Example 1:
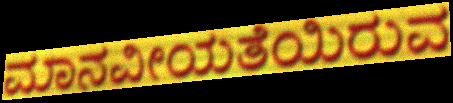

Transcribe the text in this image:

ಮಾನವೀಯತೆಯಿರುವ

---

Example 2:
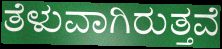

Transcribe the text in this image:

ತೆಳುವಾಗಿರುತ್ತವೆ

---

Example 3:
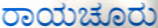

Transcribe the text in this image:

ರಾಯಚೂರು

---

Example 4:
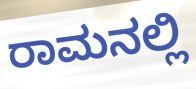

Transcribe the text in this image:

ರಾಮನಲ್ಲಿ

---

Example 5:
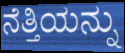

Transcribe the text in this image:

ನೆತ್ತಿಯನ್ನು